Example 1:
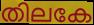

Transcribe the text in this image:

തിലകേ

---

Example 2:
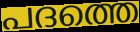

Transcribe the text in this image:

പദത്തെ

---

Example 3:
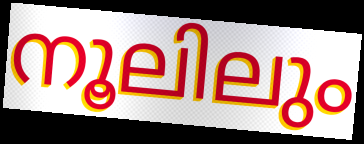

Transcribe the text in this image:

നൂലിലും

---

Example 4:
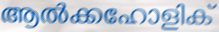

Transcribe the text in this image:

ആൽക്കഹോളിക്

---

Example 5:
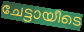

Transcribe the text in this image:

ചേട്ടായീടെ